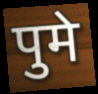
पुमे